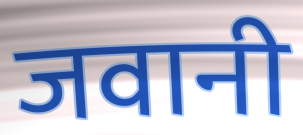
जवानी